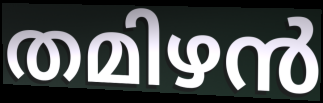
തമിഴൻ